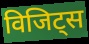
विजिट्स